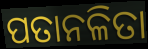
ପତାନଳିତା